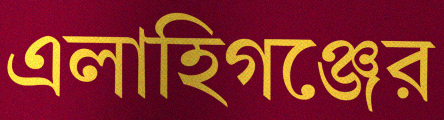
এলাহিগঞ্জের